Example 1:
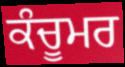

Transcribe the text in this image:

ਕੰਚੂਮਰ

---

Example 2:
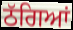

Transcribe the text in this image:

ਠੱਗਿਆਂ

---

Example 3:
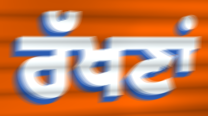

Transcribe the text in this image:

ਰੱਖਣਾਂ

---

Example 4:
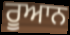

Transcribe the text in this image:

ਰੂਆਨ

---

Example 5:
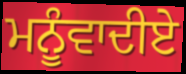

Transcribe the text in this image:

ਮਨੂੰਵਾਦੀਏ